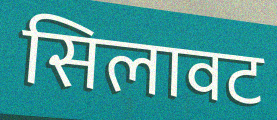
सिलावट